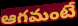
ఆగమంటే